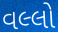
વલ્લો